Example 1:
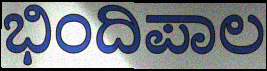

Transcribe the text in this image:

ಭಿಂದಿಪಾಲ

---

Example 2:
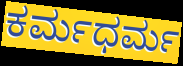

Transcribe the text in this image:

ಕರ್ಮಧರ್ಮ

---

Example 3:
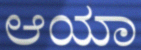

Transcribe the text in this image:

ಆಯಾ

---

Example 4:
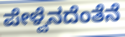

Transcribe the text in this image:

ಪೇಳ್ವೆನದೆಂತೆನೆ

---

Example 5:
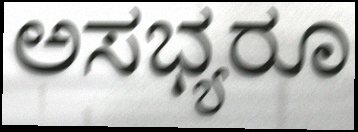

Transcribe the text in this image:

ಅಸಭ್ಯರೂ